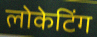
लोकेटिंग